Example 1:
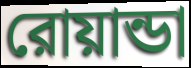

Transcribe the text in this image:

রোয়ান্ডা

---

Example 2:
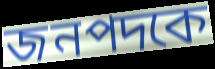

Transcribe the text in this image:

জনপদকে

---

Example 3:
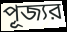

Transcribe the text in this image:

পূজ্যর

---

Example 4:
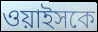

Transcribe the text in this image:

ওয়াইসকে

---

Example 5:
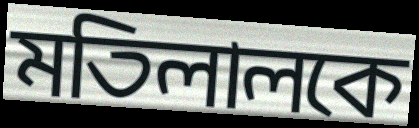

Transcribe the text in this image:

মতিলালকে